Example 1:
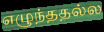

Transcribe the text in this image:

எழுந்ததல்ல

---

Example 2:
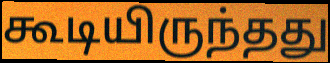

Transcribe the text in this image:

கூடியிருந்தது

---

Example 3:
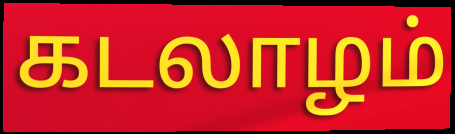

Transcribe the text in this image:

கடலாழம்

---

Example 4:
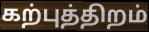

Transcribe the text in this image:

கற்புத்திறம்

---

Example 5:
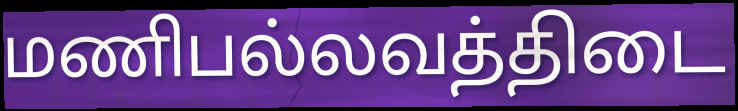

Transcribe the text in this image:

மணிபல்லவத்திடை